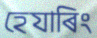
হেযাৰিং